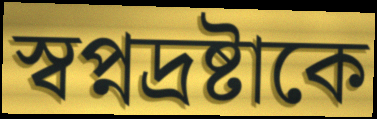
স্বপ্নদ্রষ্টাকে